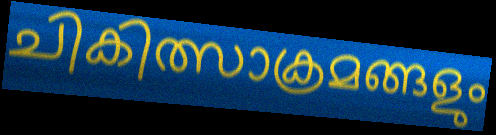
ചികിത്സാക്രമങ്ങളും